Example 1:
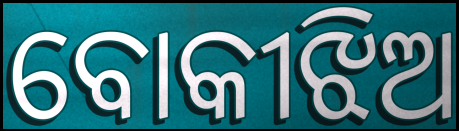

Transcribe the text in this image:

ବୋକୀଝିଅ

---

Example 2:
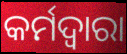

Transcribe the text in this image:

କର୍ମଦ୍ବାରା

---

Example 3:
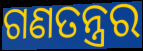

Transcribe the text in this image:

ଗଣତନ୍ତ୍ରର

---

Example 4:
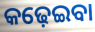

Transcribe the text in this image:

କଢ଼େଇବା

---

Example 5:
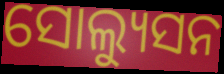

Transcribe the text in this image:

ସୋଲ୍ୟୁସନ